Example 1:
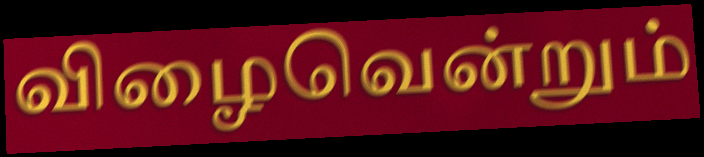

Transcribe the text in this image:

விழைவென்றும்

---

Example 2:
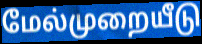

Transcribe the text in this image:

மேல்முறையீடு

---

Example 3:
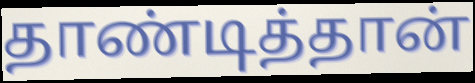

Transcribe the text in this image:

தாண்டித்தான்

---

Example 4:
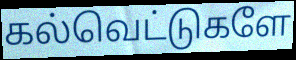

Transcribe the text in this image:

கல்வெட்டுகளே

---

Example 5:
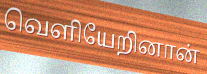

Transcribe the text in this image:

வெளியேறினான்